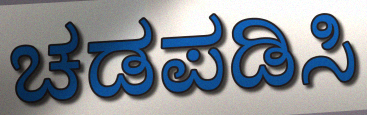
ಚಡಪಡಿಸಿ